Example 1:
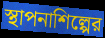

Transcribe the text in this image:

স্থাপনাশিল্পের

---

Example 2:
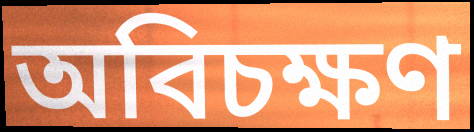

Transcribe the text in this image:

অবিচক্ষণ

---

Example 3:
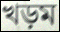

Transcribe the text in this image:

খড়ম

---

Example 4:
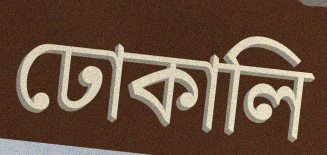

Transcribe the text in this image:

ঢোকালি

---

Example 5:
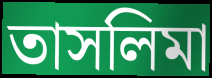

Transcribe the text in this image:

তাসলিমা